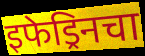
इफेड्रिनचा